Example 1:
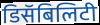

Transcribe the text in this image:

डिसॅबिलिटी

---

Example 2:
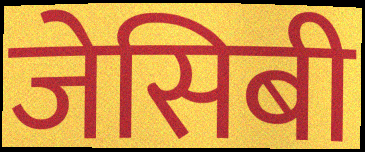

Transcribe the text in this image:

जेसिबी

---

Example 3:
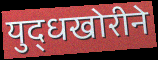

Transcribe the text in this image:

युद्धखोरीने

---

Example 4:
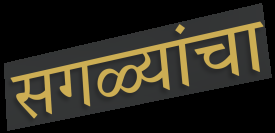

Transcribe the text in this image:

सगळ्यांचा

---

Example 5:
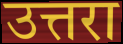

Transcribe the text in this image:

उत्तरा